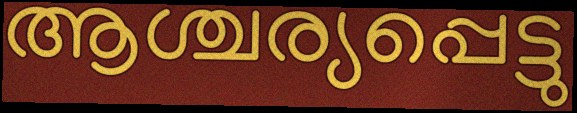
ആശ്ചര്യപ്പെട്ടു